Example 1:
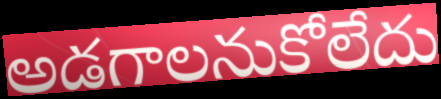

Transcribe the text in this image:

అడగాలనుకోలేదు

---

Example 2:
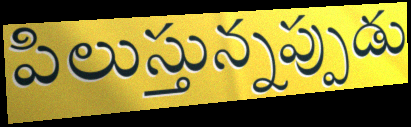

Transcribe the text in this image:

పిలుస్తున్నప్పుడు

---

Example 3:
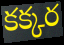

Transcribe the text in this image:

కక్కర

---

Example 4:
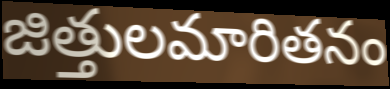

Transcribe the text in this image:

జిత్తులమారితనం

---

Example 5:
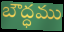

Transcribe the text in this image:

బౌద్ధము